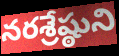
నరశ్రేష్ఠుని